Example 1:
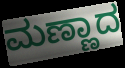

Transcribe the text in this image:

ಮಣ್ಣಾದ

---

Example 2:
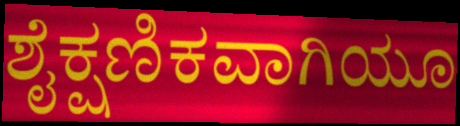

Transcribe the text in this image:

ಶೈಕ್ಷಣಿಕವಾಗಿಯೂ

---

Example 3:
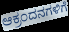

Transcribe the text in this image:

ಆಕ್ರಂದನಗಳಿಗೆ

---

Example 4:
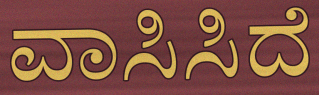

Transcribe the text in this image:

ವಾಸಿಸಿದೆ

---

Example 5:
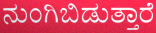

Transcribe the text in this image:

ನುಂಗಿಬಿಡುತ್ತಾರೆ